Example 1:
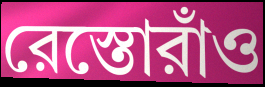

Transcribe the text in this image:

রেস্তোরাঁও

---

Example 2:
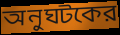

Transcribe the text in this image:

অনুঘটকের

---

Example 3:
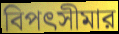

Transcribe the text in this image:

বিপৎসীমার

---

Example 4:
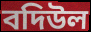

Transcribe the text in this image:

বদিউল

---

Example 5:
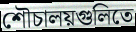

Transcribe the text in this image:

শৌচালয়গুলিতে